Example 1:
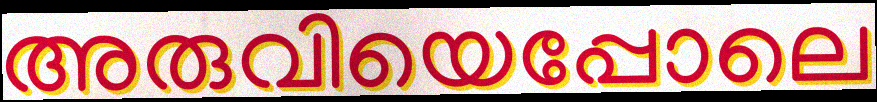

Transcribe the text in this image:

അരുവിയെപ്പോലെ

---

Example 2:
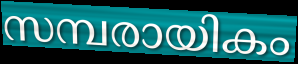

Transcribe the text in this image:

സമ്പരായികം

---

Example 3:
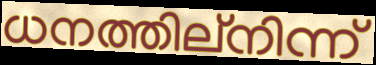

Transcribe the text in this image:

ധനത്തില്നിന്ന്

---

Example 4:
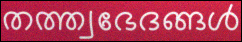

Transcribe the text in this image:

തത്ത്വഭേദങ്ങൾ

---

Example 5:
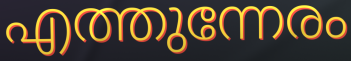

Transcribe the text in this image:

എത്തുന്നേരം